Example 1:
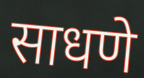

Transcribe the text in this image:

साधणे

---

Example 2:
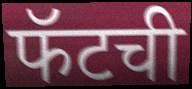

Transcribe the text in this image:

फॅटची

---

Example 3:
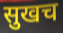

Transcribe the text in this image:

सुखच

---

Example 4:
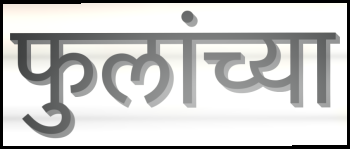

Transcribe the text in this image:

फुलांच्या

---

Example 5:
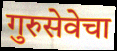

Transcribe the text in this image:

गुरुसेवेचा